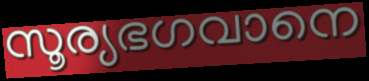
സൂര്യഭഗവാനെ